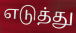
எடுத்து